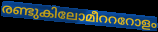
രണ്ടുകിലോമീറററോളം